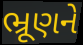
ભ્રૂણને